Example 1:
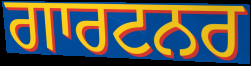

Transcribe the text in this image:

ਗਾਰਟਨਰ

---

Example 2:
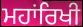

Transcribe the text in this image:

ਮਹਾਂਰਿਖੀ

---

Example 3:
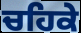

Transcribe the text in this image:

ਚਹਿਕੇ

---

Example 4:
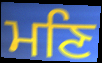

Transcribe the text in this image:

ਮਣਿ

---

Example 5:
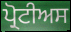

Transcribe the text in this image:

ਪ੍ਰੋਟੀਅਸ